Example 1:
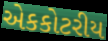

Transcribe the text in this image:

એકકોટરીય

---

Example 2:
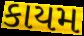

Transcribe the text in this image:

કાયમ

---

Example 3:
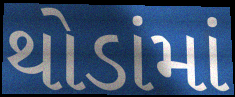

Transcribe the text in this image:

થોડાંમાં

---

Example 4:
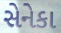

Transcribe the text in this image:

સેનેકા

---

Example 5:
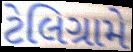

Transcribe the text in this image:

ટેલિગ્રામે